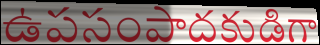
ఉపసంపాదకుడిగా